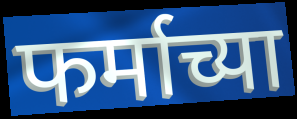
फर्माच्या